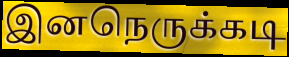
இனநெருக்கடி